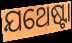
ଯଥେଷ୍ଟା